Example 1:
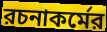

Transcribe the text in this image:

রচনাকর্মের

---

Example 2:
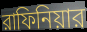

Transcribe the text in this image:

রাফিনিয়ার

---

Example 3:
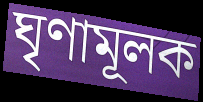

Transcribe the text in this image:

ঘৃণামূলক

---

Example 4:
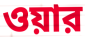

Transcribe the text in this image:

ওয়ার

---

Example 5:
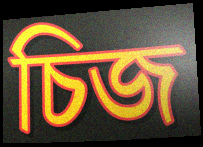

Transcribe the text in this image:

চিজ